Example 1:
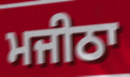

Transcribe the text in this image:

ਮਜੀਠਾ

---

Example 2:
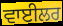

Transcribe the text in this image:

ਵਾਈਲਰ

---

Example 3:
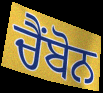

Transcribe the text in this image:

ਚੈਂਬੋਨ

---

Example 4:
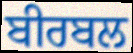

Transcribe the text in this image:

ਬੀਰਬਲ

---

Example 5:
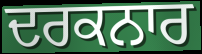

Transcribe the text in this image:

ਦਰਕਨਾਰ